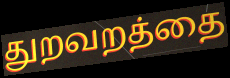
துறவறத்தை